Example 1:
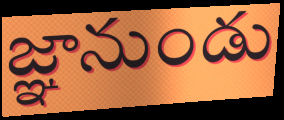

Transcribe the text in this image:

జ్ఞానుండు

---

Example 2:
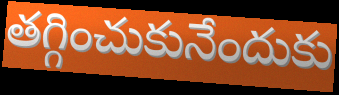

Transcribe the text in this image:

తగ్గించుకునేందుకు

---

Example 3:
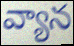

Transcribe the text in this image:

వ్యాన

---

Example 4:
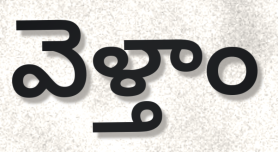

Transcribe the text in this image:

వెళ్తాం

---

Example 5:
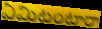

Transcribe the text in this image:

ఏమిటంటారా